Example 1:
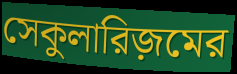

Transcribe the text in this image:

সেকুলারিজ়মের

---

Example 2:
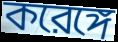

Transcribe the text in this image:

করেঙ্গে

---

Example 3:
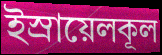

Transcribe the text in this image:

ইস্রায়েলকূল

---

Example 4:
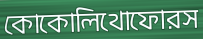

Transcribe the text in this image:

কোকোলিথোফোরস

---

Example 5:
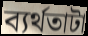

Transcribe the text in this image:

ব্যর্থতাটা